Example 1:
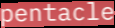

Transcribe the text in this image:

pentacle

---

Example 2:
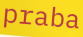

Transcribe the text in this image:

praba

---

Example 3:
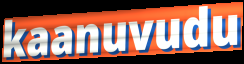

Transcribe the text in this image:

kaanuvudu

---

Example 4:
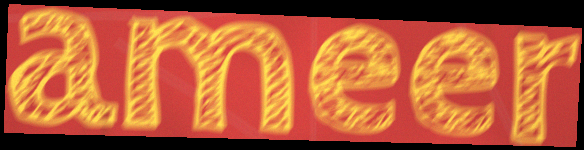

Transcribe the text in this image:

ameer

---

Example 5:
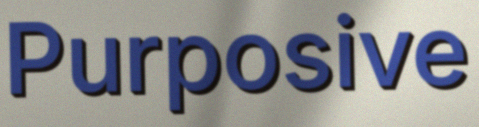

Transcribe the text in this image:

Purposive